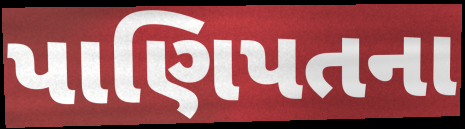
પાણિપતના